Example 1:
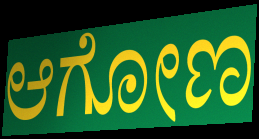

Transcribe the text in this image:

ಆಗೋಣ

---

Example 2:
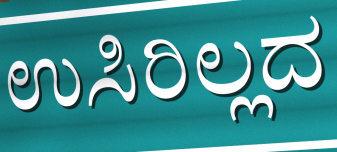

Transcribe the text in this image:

ಉಸಿರಿಲ್ಲದ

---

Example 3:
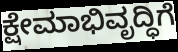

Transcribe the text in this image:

ಕ್ಷೇಮಾಭಿವೃದ್ಧಿಗೆ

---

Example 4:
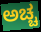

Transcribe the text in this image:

ಅಚ್ಚ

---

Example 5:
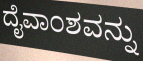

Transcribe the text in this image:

ದೈವಾಂಶವನ್ನು